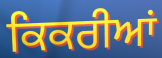
ਕਿਕਰੀਆਂ